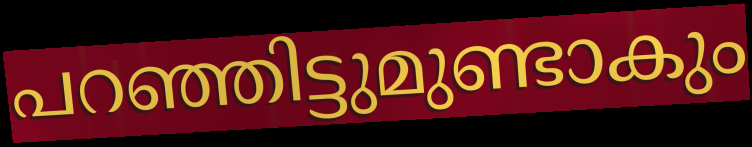
പറഞ്ഞിട്ടുമുണ്ടാകും